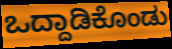
ಒದ್ದಾಡಿಕೊಂಡು